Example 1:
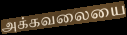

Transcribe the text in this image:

அக்கவலையை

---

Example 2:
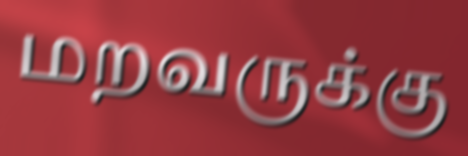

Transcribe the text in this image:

மறவருக்கு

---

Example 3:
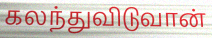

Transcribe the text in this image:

கலந்துவிடுவான்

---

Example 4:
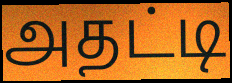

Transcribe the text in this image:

அதட்டி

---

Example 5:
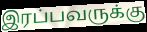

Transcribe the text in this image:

இரப்பவருக்கு